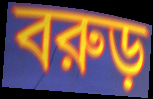
বরুড়